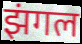
झंगल